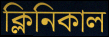
ক্লিনিকাল